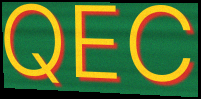
QEC